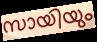
സായിയും